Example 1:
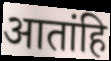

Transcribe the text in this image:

आतांहि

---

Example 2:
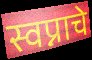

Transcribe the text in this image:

स्वप्नाचे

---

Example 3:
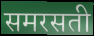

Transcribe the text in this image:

समरसती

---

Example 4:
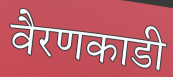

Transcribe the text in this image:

वैरणकाडी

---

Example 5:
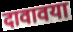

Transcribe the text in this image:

दावावया